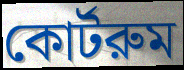
কোর্টরুম